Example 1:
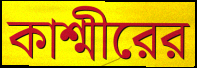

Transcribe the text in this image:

কাশ্মীরের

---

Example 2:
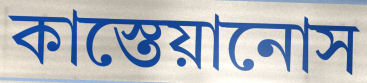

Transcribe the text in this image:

কাস্তেয়ানোস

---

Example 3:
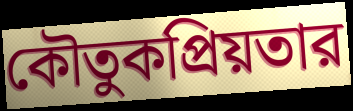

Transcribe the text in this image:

কৌতুকপ্রিয়তার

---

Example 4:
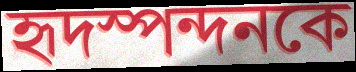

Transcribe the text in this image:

হৃদস্পন্দনকে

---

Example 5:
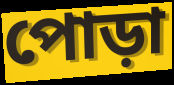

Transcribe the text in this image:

পোড়া